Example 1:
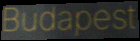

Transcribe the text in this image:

Budapest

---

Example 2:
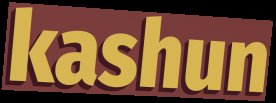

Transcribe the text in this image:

kashun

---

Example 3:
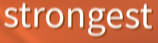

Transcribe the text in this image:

strongest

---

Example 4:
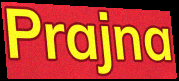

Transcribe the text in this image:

Prajna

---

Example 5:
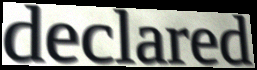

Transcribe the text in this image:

declared